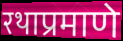
रथाप्रमाणे